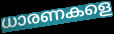
ധാരണകളെ